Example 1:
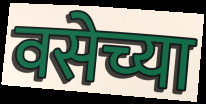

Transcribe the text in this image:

वसेच्या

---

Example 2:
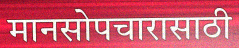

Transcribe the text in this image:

मानसोपचारासाठी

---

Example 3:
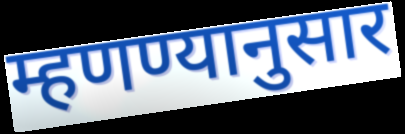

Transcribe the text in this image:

म्हणण्यानुसार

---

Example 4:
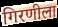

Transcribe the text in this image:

गिरणीला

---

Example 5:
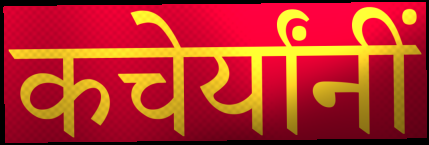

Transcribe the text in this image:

कचेर्यांनीं